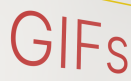
GIFs